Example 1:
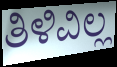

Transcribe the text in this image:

ತಿಳಿವಿಲ್ಲ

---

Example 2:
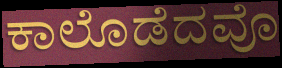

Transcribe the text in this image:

ಕಾಲೊಡೆದವೊ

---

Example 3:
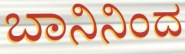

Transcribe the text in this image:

ಬಾನಿನಿಂದ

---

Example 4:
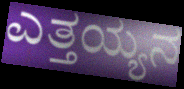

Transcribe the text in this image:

ಎತ್ತಯ್ಯನ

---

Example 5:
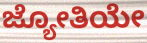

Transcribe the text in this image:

ಜ್ಯೋತಿಯೇ